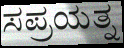
ಸಪ್ರಯತ್ನ